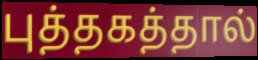
புத்தகத்தால்